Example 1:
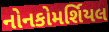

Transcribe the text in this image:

નોનકોમર્શિયલ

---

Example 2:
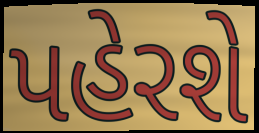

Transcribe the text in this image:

પહેરશે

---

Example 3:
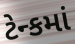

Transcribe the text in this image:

ટેન્કમાં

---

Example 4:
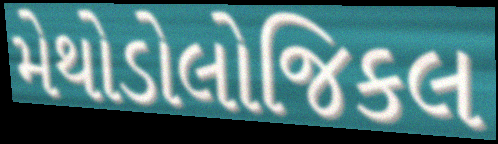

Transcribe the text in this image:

મેથોડોલોજિકલ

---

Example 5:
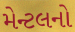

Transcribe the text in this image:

મેન્ટલનો